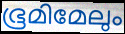
ഭൂമിമേലും